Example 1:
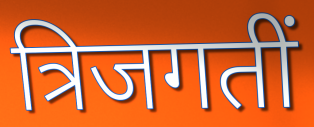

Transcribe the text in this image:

त्रिजगतीं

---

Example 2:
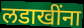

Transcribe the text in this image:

लडाखींना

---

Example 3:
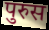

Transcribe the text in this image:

पुरुस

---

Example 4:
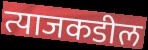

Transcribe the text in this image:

त्याजकडील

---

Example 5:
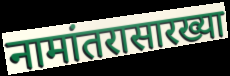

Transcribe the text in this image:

नामांतरासारख्या